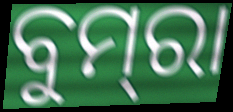
ବୁମ୍‌ରା